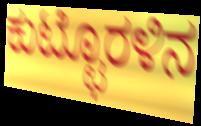
ಕುಟ್ಟೊರಳಿನ